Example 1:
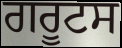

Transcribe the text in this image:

ਗਰੂਟਸ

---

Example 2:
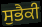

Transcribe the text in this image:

ਸੁਭੈਕੀ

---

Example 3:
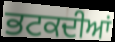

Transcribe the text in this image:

ਭਟਕਦੀਆਂ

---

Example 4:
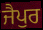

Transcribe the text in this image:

ਜੈਪੁਰ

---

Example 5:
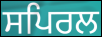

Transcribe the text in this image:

ਸਪਿਰਲ